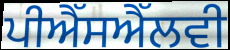
ਪੀਐੱਸਐੱਲਵੀ